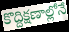
కొద్దిక్షణాల్లోనే